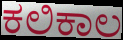
ಕಲಿಕಾಲ